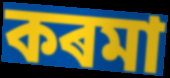
কৰমা